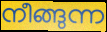
നീങ്ങുന്ന